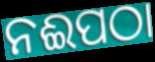
ନଈପଠା